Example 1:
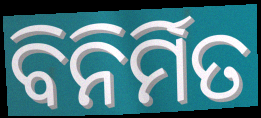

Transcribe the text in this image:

ବିନିର୍ମିତ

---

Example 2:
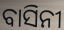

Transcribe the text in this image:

ବାସିନୀ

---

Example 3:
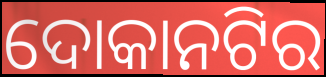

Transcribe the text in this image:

ଦୋକାନଟିର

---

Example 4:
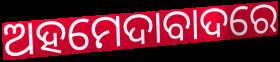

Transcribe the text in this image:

ଅହମେଦାବାଦରେ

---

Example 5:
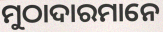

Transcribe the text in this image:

ମୁଠାଦାରମାନେ